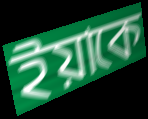
ইয়াকে